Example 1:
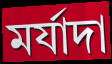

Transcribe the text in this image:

মৰ্যাদা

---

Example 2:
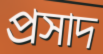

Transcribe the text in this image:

প্ৰসাদ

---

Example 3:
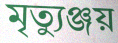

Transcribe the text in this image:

মৃত্যুঞ্জয়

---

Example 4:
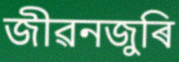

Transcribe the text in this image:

জীৱনজুৰি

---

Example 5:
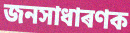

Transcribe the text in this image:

জনসাধাৰণক